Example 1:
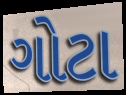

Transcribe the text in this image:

ગોટા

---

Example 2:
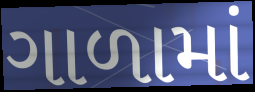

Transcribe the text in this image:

ગાળામાં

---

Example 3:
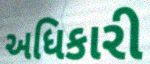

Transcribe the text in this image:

અધિકારી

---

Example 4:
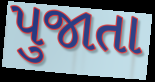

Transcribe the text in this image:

પુજાતા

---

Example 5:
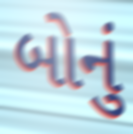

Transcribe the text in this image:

બોનું